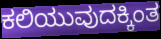
ಕಲಿಯುವುದಕ್ಕಿಂತ